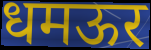
धमऊर